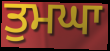
ਤੁਮਘਾ